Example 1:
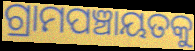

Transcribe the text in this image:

ଗ୍ରାମପଞ୍ଚାୟତକୁ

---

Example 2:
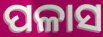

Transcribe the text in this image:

ପଳାସ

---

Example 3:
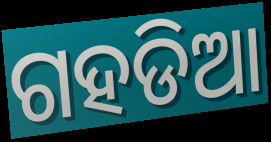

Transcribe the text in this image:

ଗହଡିଆ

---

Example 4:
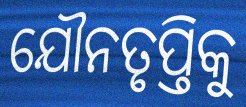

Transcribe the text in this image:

ଯୌନତୃପ୍ତିକୁ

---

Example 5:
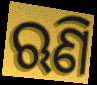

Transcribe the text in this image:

ଋଣି